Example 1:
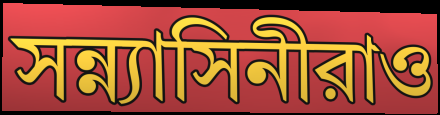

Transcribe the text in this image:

সন্ন্যাসিনীরাও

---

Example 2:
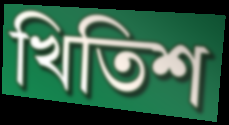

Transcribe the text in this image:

খিতিশ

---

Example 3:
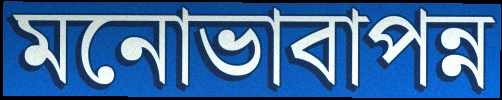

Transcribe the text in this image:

মনোভাবাপন্ন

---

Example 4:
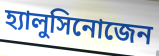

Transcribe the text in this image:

হ্যালুসিনোজেন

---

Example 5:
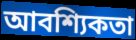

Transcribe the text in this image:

আবশ্যিকতা